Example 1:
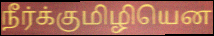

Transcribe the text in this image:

நீர்க்குமிழியென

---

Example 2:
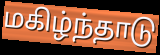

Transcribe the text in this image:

மகிழ்ந்தாடு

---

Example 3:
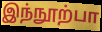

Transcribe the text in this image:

இந்நூற்பா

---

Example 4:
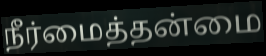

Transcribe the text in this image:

நீர்மைத்தன்மை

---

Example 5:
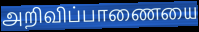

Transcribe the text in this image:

அறிவிப்பாணையை